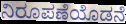
ನಿರೂಪಣೆಯೊಡನೆ